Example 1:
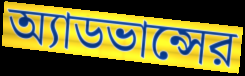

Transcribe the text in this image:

অ্যাডভান্সের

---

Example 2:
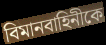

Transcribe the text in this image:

বিমানবাহিনীকে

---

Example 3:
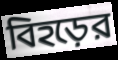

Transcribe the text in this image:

বিহড়ের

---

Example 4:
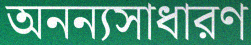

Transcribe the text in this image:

অনন্যসাধারণ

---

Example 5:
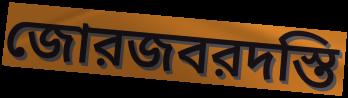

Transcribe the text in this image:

জোরজবরদস্তি